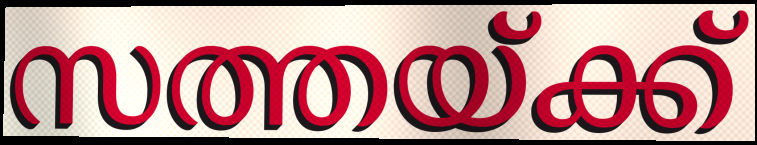
സത്തയ്ക്ക്